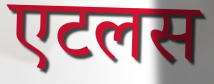
एटलस